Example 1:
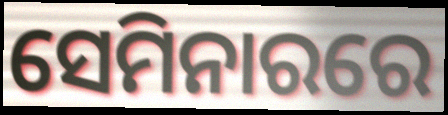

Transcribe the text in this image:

ସେମିନାରରେ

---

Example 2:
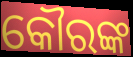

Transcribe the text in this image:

କୌରଙ୍କ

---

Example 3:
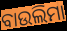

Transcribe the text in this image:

ବାଉଲିମା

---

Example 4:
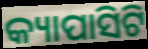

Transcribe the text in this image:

କ୍ୟାପାସିଟି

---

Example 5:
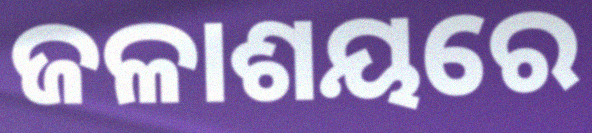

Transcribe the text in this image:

ଜଳାଶୟରେ